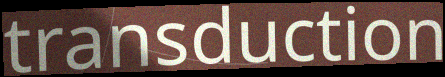
transduction